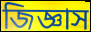
জিজ্ঞাস